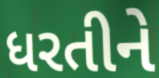
ધરતીને